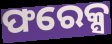
ଫରେକ୍ସ